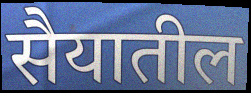
सैयातील